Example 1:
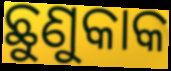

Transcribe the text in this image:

ଛୁଣୁକାକ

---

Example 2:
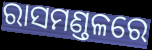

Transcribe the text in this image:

ରାସମଣ୍ଡଳରେ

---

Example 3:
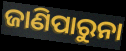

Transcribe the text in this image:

ଜାଣିପାରୁନା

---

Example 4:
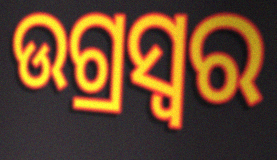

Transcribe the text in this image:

ଉଗ୍ରସ୍ୱର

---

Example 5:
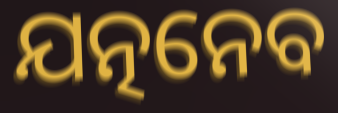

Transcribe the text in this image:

ଯତ୍ନନେବ